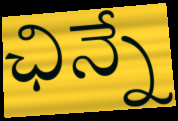
ఛిన్నే